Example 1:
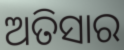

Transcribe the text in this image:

ଅତିସାର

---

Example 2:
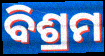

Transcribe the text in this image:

ବିଶ୍ରମ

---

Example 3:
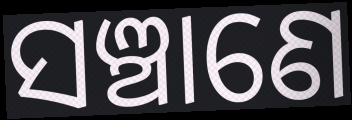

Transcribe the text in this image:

ସଞ୍ଚାଣେ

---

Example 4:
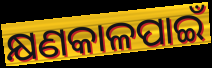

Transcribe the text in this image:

କ୍ଷଣକାଳପାଇଁ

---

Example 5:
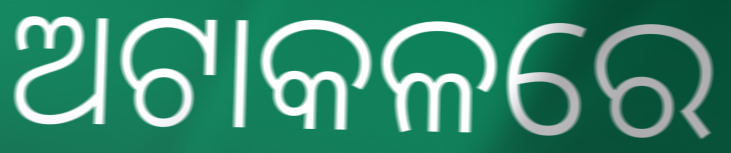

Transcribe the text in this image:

ଅଟାକଳରେ